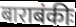
बाराबंकीः